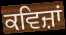
ਕਵਿਜ਼ਾਂ